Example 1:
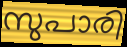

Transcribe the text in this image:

സുപാരി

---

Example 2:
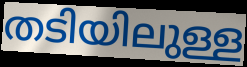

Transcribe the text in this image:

തടിയിലുള്ള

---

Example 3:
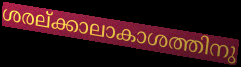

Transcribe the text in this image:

ശരല്ക്കാലാകാശത്തിനു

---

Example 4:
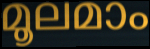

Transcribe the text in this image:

മൂലമാം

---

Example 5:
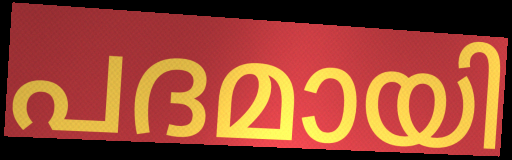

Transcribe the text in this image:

പദമായി